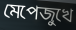
মেপেজুখে